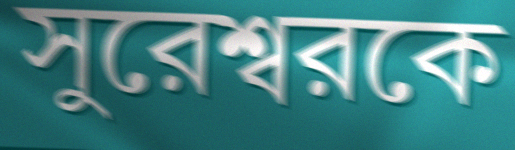
সুরেশ্বরকে